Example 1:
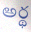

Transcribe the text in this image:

అర్థ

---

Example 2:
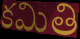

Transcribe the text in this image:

కమితి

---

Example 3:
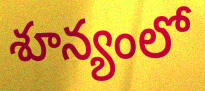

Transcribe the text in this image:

శూన్యంలో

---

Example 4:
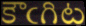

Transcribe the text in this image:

కౌఁగిట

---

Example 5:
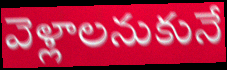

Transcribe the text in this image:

వెళ్లాలనుకునే